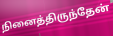
நினைத்திருந்தேன்